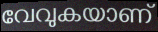
വേവുകയാണ്